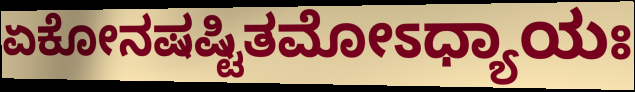
ಏಕೋನಷಷ್ಟಿತಮೋಽಧ್ಯಾಯಃ